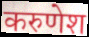
करुणेश